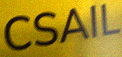
CSAIL